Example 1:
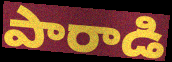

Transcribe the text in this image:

పారాడి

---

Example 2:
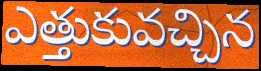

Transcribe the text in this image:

ఎత్తుకువచ్చిన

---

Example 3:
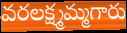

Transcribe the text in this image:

వరలక్ష్మమ్మగారు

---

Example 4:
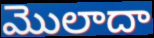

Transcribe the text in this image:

మొలాదా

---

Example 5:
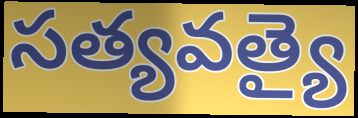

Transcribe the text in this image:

సత్యవత్యై